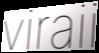
viraii